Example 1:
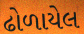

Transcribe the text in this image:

ઢોળાયેલ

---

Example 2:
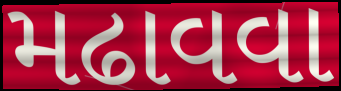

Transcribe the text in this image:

મઢાવવા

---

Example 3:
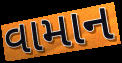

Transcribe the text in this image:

વામાન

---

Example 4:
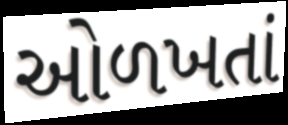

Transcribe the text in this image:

ઓળખતાં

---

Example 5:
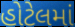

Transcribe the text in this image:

હોટેલમાં